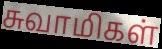
சுவாமிகள்